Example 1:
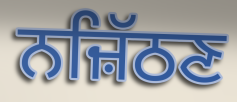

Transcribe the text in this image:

ਨਜ਼ਿੱਠਣ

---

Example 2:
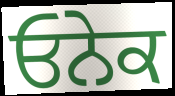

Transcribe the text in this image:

ਓਨੇਕ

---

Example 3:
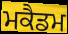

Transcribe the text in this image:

ਮਕੈਡਮ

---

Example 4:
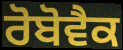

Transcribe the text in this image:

ਰੋਬੋਵੈਕ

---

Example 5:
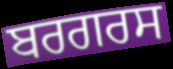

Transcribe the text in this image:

ਬਰਗਰਸ